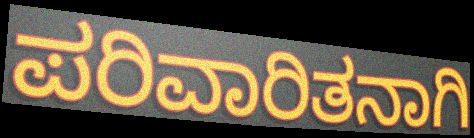
ಪರಿವಾರಿತನಾಗಿ